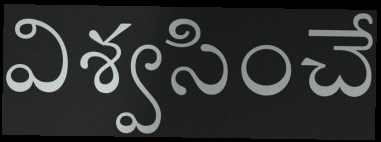
విశ్వసించే